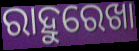
ରାହୁରେଖା